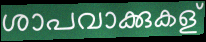
ശാപവാക്കുകള്